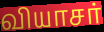
வியாசர்